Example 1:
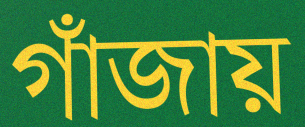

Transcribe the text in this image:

গাঁজায়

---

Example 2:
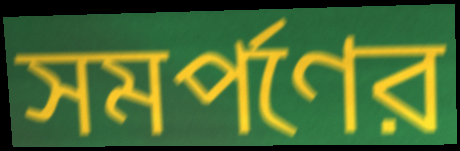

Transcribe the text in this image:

সমর্পণের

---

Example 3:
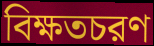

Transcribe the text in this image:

বিক্ষতচরণ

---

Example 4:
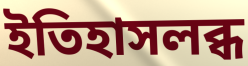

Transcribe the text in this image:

ইতিহাসলব্ধ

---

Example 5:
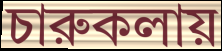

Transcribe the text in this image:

চারুকলায়